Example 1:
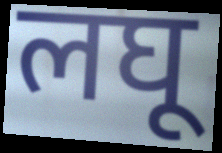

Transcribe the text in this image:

लघू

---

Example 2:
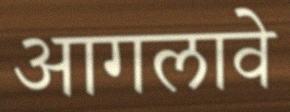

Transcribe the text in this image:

आगलावे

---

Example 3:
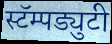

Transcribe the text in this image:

स्टॅम्पड्युटी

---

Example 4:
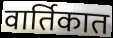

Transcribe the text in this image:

वार्तिकात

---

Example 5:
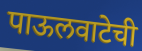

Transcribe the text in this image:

पाऊलवाटेची